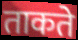
ताकते